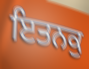
ਇਤਨਕੁ